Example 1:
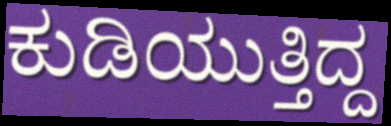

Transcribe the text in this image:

ಕುಡಿಯುತ್ತಿದ್ದ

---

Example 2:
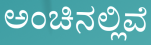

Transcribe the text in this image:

ಅಂಚಿನಲ್ಲಿವೆ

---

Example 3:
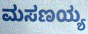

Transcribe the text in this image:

ಮಸಣಯ್ಯ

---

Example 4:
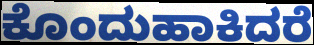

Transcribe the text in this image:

ಕೊಂದುಹಾಕಿದರೆ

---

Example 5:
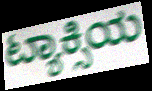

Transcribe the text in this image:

ಟ್ಯಾಕ್ಸಿಯ